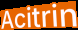
Acitrin